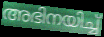
അഭിനയിച്ച്